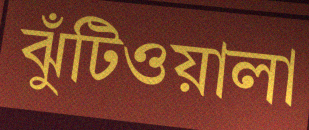
ঝুঁটিওয়ালা